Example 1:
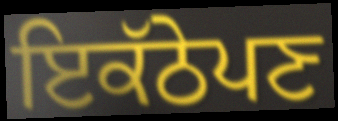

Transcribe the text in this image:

ਇਕੱਠੇਪਣ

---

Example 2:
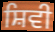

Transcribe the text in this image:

ਸ਼ਿਵੀ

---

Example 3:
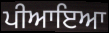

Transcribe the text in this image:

ਪੀਆਇਆ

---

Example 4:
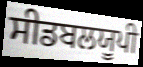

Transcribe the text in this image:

ਸੀਡਬਲਯੂਪੀ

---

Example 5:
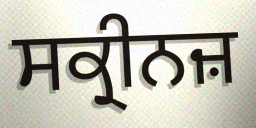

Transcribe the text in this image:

ਸਕ੍ਰੀਨਜ਼